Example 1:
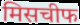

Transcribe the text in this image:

मिसचीफ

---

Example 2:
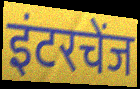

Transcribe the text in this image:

इंटरचेंज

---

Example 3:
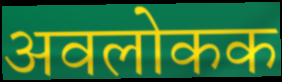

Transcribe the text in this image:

अवलोकक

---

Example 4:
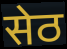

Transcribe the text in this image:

सेठ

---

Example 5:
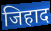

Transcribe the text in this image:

जिहाद